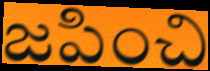
జపించి